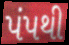
પંપથી